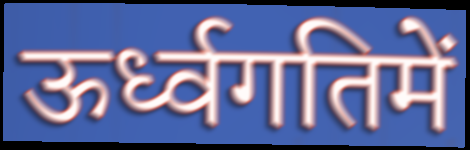
ऊर्ध्वगतिमें